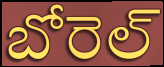
బోరెల్